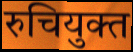
रुचियुक्त